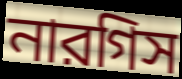
নারগিস